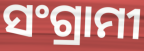
ସଂଗ୍ରାମୀ